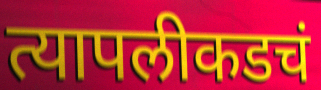
त्यापलीकडचं